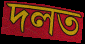
দলত